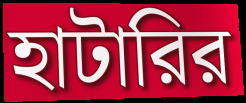
হাটারির